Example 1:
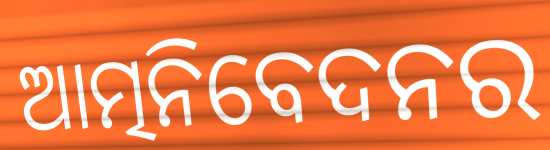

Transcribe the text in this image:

ଆତ୍ମନିବେଦନର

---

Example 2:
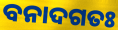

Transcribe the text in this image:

ବନାଦଗତଃ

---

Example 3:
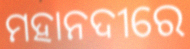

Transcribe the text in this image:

ମହାନଦୀରେ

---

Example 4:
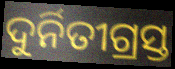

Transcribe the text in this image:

ଦୁର୍ନିତୀଗ୍ରସ୍ତ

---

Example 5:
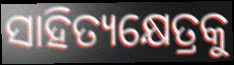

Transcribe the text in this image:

ସାହିତ୍ୟକ୍ଷେତ୍ରକୁ